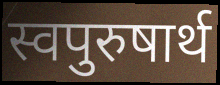
स्वपुरुषार्थ